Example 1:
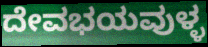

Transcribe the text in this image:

ದೇವಭಯವುಳ್ಳ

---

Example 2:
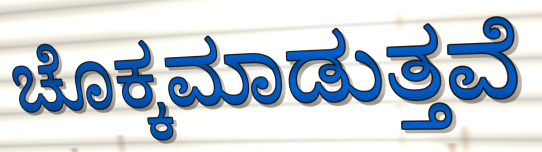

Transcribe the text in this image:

ಚೊಕ್ಕಮಾಡುತ್ತವೆ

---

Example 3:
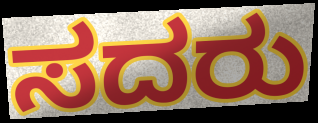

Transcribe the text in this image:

ಸದರು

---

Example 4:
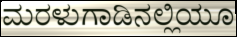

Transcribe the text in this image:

ಮರಳುಗಾಡಿನಲ್ಲಿಯೂ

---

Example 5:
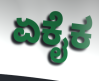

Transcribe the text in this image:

ಏಕೈಕ